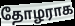
தோழராக